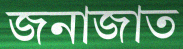
জনাজাত